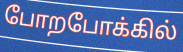
போறபோக்கில்